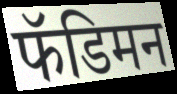
फॅडिमन